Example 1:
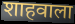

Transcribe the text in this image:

शाहवाला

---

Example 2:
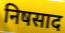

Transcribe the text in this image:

निषसाद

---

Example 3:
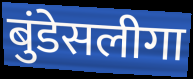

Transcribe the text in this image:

बुंडेसलीगा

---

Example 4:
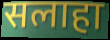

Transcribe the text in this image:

सलाहा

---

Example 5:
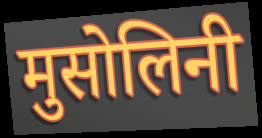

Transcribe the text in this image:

मुसोलिनी